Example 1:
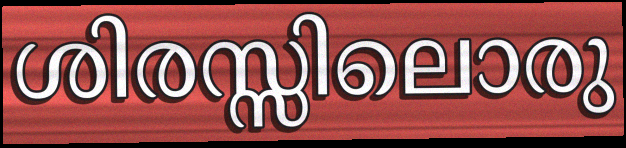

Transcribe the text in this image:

ശിരസ്സിലൊരു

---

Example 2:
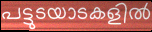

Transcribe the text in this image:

പട്ടുടയാടകളിൽ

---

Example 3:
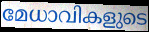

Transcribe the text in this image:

മേധാവികളുടെ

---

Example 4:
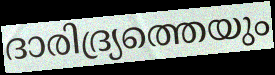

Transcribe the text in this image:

ദാരിദ്ര്യത്തെയും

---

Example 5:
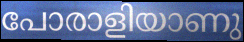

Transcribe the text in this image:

പോരാളിയാണു